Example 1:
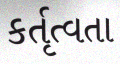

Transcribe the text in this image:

કર્તૃત્વતા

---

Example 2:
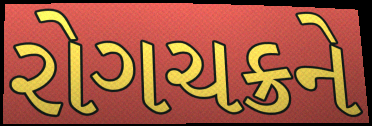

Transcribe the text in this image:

રોગચક્રને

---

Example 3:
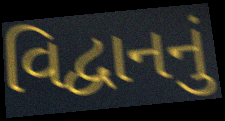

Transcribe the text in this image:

વિદ્વાનનું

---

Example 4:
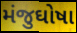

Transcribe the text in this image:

મંજુઘોષા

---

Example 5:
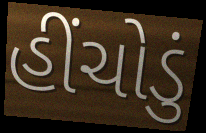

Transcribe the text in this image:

હીંચોડું